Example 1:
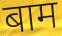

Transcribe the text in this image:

बाम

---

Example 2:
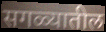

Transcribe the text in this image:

सगळ्यातील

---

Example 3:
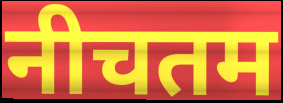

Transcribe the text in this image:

नीचतम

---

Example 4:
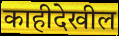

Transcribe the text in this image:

काहीदेखील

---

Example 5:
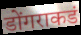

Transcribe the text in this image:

डोंगराकडं